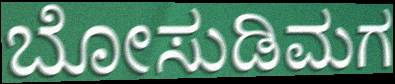
ಬೋಸುಡಿಮಗ